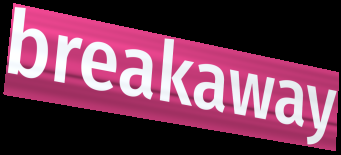
breakaway